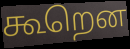
கூறென